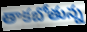
తాకబోతున్న